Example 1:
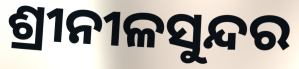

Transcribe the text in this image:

ଶ୍ରୀନୀଳସୁନ୍ଦର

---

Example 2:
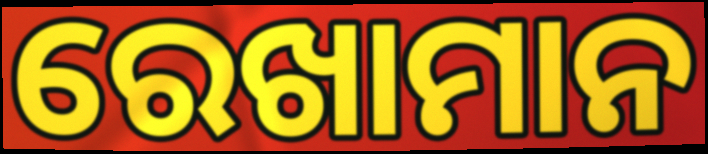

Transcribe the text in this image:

ରେଖାମାନ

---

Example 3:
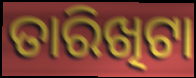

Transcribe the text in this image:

ତାରିଖିଟା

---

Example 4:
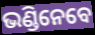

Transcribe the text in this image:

ଭଣ୍ଡିନେବେ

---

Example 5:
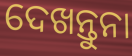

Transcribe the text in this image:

ଦେଖନ୍ତୁନା